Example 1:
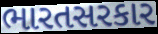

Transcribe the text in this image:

ભારતસરકાર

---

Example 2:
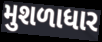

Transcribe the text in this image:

મુશળાધાર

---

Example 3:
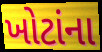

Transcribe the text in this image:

ખોટાંના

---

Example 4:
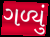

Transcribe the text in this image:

ગળ્યું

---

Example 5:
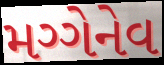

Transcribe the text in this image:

મગ્ગેનેવ